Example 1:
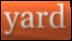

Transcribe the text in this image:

yard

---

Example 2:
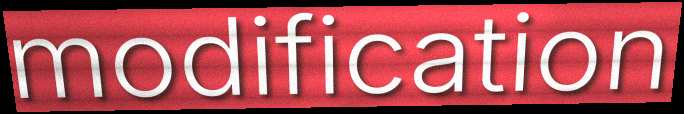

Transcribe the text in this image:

modification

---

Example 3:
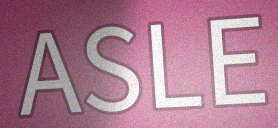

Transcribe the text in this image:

ASLE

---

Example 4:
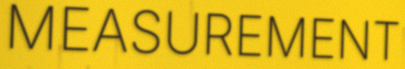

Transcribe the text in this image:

MEASUREMENT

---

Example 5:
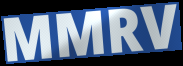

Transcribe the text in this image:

MMRV